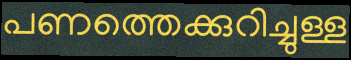
പണത്തെക്കുറിച്ചുള്ള